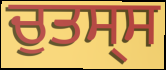
ਚੁਤਸ੍ਸ